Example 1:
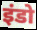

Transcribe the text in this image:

इंडो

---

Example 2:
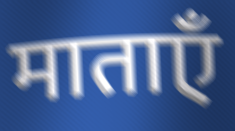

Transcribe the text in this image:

माताएँ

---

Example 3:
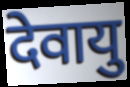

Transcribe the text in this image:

देवायु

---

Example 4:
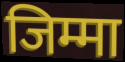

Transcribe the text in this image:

जिम्‍मा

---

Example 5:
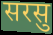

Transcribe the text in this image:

सरसु